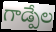
గాడ్పేల